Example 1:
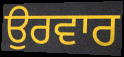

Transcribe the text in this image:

ਉਰਵਾਰ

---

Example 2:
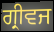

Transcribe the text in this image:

ਗ੍ਰੀਵਜ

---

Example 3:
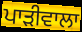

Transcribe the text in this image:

ਪਾੜੀਵਾਲਾ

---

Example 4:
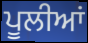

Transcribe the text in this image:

ਪੂਲੀਆਂ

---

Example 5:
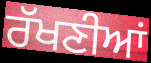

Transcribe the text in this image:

ਰੱਖਣੀਆਂ